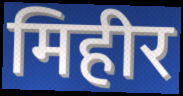
मिहीर